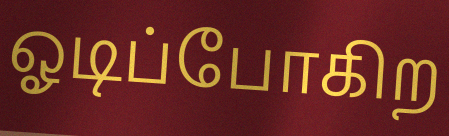
ஓடிப்போகிற